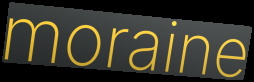
moraine